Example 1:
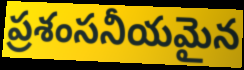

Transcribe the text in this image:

ప్రశంసనీయమైన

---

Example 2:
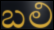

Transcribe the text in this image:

బలి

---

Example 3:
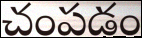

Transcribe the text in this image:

చంపడం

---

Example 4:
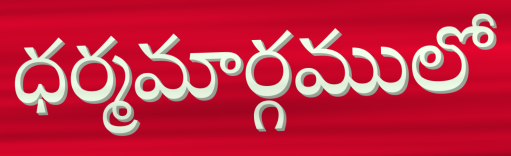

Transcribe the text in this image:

ధర్మమార్గములో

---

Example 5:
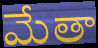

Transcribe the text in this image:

మేతా